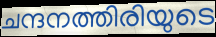
ചന്ദനത്തിരിയുടെ